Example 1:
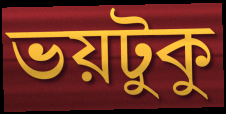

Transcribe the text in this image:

ভয়টুকু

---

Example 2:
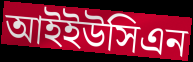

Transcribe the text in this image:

আইইউসিএন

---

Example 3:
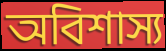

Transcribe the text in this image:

অবিশাস্য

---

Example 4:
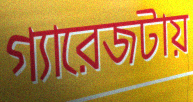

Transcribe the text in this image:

গ্যারেজটায়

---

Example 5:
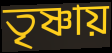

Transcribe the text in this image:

তৃষ্ণায়